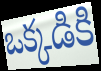
ఒక్కడికి